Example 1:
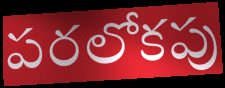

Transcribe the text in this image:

పరలోకపు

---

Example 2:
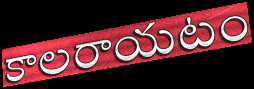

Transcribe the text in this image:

కాలరాయటం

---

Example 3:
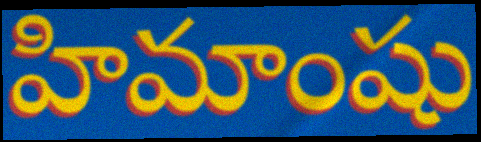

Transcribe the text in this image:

హిమాంషు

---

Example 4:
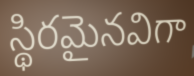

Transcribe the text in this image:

స్థిరమైనవిగా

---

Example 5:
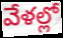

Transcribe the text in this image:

వేళల్లో